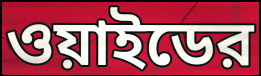
ওয়াইডের